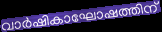
വാർഷികാഘോഷത്തിന്